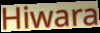
Hiwara